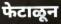
फेटाळून